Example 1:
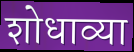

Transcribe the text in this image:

शोधाव्या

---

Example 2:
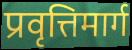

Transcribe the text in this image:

प्रवृत्तिमार्ग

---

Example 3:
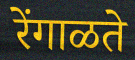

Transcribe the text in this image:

रेंगाळते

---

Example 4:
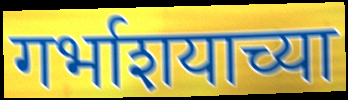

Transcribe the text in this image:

गर्भाशयाच्या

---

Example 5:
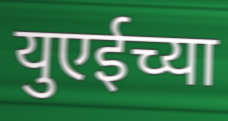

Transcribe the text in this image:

युएईच्या